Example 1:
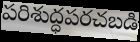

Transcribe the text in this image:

పరిశుద్ధపరచబడి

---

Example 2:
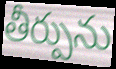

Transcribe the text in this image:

తీర్పును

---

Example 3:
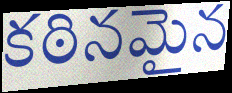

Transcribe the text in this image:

కఠినమైన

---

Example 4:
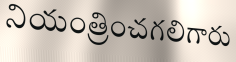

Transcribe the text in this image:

నియంత్రించగలిగారు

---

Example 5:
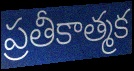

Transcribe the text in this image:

ప్రతీకాత్మక